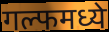
गल्फमध्ये